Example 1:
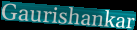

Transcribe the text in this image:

Gaurishankar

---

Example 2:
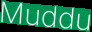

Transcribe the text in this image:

Muddu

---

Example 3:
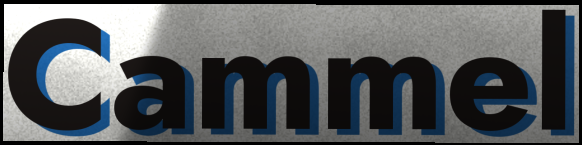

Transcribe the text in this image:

Cammel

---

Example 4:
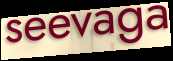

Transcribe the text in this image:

seevaga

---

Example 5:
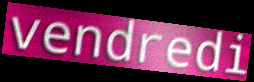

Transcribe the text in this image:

vendredi